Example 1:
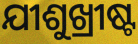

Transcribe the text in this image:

ଯୀଶୁଖ୍ରୀଷ୍ଟ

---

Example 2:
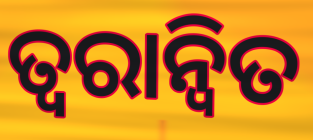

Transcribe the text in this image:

ତ୍ଵରାନ୍ବିତ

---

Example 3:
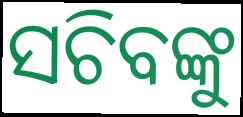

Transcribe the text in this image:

ସଚିବଙ୍କୁ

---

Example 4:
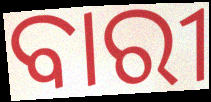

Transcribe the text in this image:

ବାରୀ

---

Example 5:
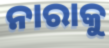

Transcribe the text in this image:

ନାରାକୁ